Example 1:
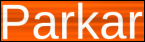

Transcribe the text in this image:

Parkar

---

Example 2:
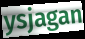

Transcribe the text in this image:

ysjagan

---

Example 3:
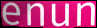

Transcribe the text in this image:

enun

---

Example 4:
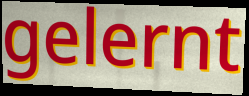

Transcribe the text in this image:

gelernt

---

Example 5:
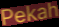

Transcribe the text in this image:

Pekah